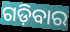
ଗଡ଼ିବାର